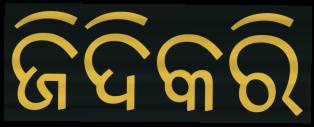
ଜିଦିକରି